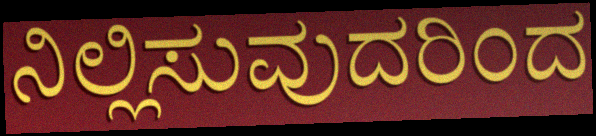
ನಿಲ್ಲಿಸುವುದರಿಂದ